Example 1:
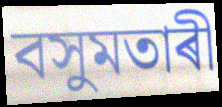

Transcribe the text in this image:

বসুমতাৰী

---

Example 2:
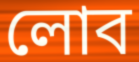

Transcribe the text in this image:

লোব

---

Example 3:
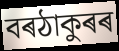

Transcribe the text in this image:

বৰঠাকুৰৰ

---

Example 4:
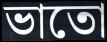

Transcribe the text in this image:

ভাতো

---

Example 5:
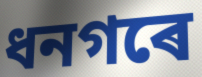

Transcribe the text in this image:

ধনগৰে